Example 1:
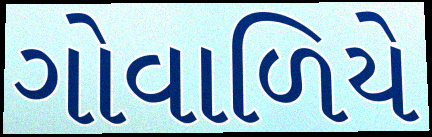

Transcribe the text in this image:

ગોવાળિયે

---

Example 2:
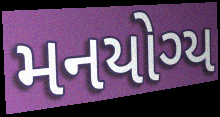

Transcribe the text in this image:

મનયોગ્ય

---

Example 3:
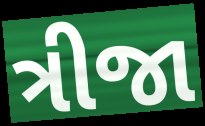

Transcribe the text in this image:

ત્રીજા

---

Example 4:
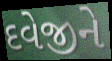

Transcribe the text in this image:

દવેજીને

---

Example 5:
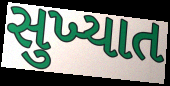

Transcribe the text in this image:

સુખ્યાત